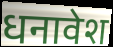
धनावेश